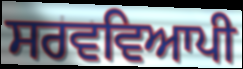
ਸਰਵਵਿਆਪੀ